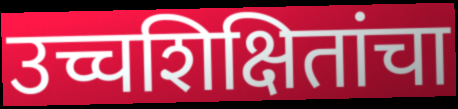
उच्चशिक्षितांचा